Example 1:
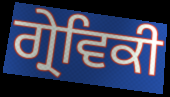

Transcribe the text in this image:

ਗ੍ਰੇਵਿਕੀ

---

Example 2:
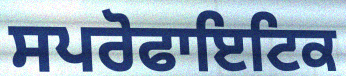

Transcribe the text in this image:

ਸਪਰੋਫਾਇਟਿਕ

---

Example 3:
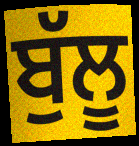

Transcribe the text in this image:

ਬੁੱਲੂ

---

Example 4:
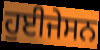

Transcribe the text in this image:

ਹੁਈਜੇਸਨ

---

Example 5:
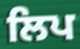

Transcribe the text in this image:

ਲਿਪ